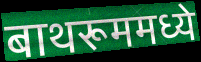
बाथरूममध्ये